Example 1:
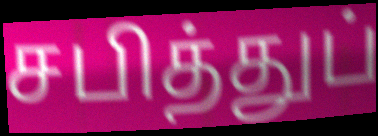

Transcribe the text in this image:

சபித்துப்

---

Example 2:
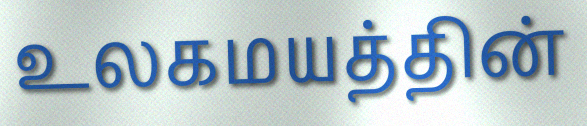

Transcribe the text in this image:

உலகமயத்தின்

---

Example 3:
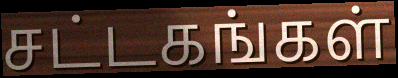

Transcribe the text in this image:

சட்டகங்கள்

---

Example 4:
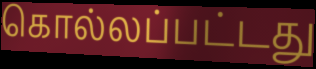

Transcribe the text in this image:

கொல்லப்பட்டது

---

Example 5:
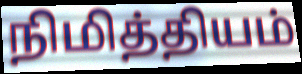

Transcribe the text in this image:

நிமித்தியம்